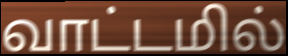
வாட்டமில்